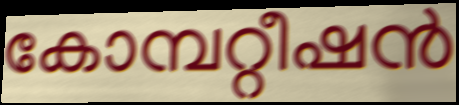
കോമ്പറ്റീഷൻ